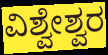
ವಿಶ್ವೇಶ್ವರ